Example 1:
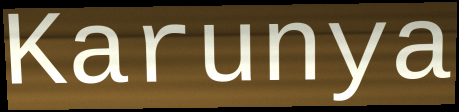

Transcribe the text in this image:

Karunya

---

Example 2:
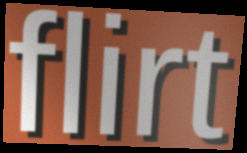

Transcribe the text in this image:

flirt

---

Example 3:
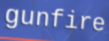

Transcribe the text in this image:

gunfire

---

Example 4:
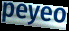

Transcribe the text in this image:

peyeo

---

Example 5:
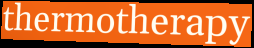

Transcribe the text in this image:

thermotherapy